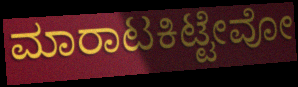
ಮಾರಾಟಕಿಟ್ಟೇವೋ